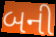
બની